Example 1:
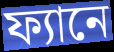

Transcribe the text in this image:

ফ্যানে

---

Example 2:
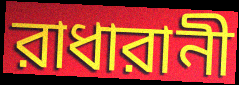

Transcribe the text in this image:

রাধারানী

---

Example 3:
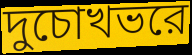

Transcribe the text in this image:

দুচোখভরে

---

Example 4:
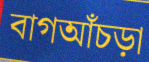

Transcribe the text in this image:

বাগআঁচড়া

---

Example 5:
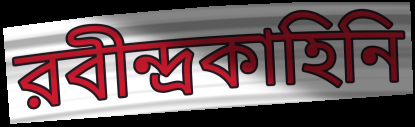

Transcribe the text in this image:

রবীন্দ্রকাহিনি